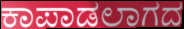
ಕಾಪಾಡಲಾಗದ